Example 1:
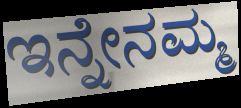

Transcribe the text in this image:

ಇನ್ನೇನಮ್ಮ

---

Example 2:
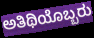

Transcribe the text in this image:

ಅತಿಥಿಯೊಬ್ಬರು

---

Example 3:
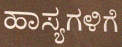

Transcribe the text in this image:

ಹಾಸ್ಯಗಳಿಗೆ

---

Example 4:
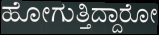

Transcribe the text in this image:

ಹೋಗುತ್ತಿದ್ದಾರೋ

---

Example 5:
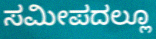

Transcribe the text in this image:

ಸಮೀಪದಲ್ಲೂ